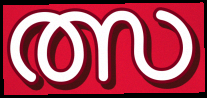
ത്സ